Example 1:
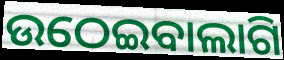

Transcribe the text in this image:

ଉଠେଇବାଲାଗି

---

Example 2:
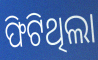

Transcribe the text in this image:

ଫିଟିଥିଲା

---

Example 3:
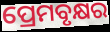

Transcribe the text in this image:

ପ୍ରେମବୃକ୍ଷର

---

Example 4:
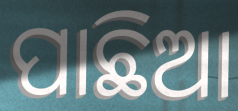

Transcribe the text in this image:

ପାଛିଆ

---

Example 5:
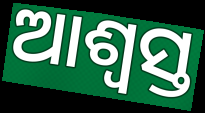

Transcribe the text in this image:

ଆଶ୍ଵସ୍ତ